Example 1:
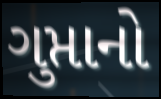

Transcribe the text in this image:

ગુપ્તાનો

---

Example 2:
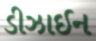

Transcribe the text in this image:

ડીઝાઈન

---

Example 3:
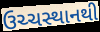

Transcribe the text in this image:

ઉચ્ચસ્થાનથી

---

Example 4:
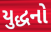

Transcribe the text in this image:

યુદ્ધનો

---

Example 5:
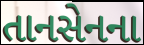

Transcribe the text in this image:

તાનસેનના